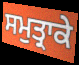
ਸਮੁਤ੍ਰਾਕੇ